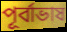
পূর্বাভাষ